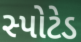
સ્પોટેડ